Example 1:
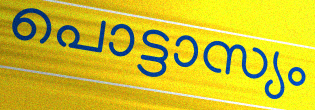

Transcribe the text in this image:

പൊട്ടാസ്യം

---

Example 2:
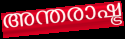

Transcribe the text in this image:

അന്തരാഷ്ട്ര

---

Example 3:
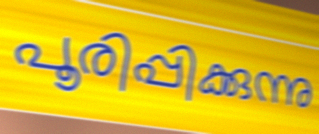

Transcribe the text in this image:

പൂരിപ്പിക്കുന്നു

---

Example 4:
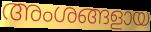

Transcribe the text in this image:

അംശങ്ങളായ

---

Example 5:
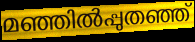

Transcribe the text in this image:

മഞ്ഞിൽപ്പുതഞ്ഞ്